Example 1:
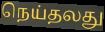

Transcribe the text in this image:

நெய்தலது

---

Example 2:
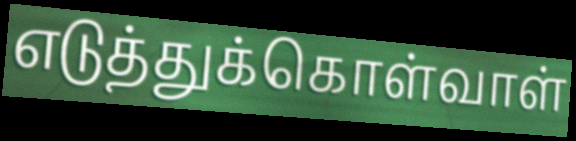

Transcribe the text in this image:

எடுத்துக்கொள்வாள்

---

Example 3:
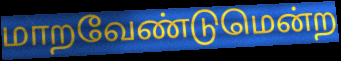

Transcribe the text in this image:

மாறவேண்டுமென்ற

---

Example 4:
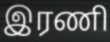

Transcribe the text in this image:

இரணி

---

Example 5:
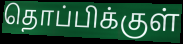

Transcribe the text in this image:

தொப்பிக்குள்